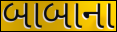
બાબાના